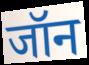
जॉन